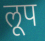
लूप